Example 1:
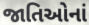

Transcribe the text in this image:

જાતિઓનાં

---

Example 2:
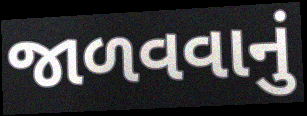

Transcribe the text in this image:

જાળવવાનું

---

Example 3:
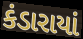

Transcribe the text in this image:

કંડારાયાં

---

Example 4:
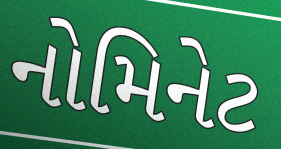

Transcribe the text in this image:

નોમિનેટ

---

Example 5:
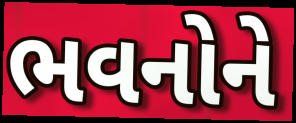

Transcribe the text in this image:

ભવનોને